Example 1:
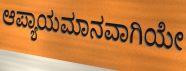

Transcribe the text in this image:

ಆಪ್ಯಾಯಮಾನವಾಗಿಯೇ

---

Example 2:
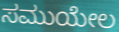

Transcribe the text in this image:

ಸಮುಯೇಲ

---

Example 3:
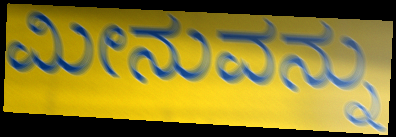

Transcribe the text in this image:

ಮೀನುವನ್ನು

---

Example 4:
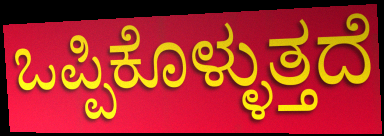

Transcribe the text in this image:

ಒಪ್ಪಿಕೊಳ್ಳುತ್ತದೆ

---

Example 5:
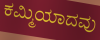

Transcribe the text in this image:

ಕಮ್ಮಿಯಾದವು